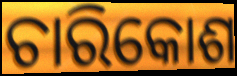
ଚାରିକୋଶ